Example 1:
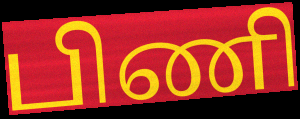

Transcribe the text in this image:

பிணி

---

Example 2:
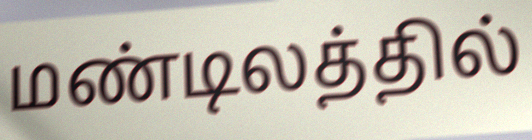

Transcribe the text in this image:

மண்டிலத்தில்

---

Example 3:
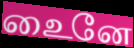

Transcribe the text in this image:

உைனே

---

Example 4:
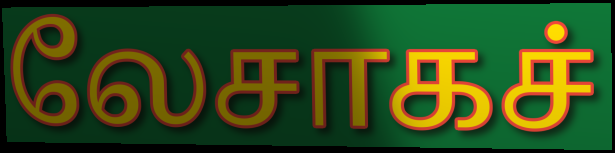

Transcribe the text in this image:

லேசாகச்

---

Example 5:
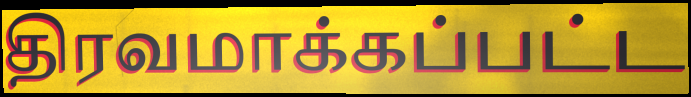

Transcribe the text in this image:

திரவமாக்கப்பட்ட